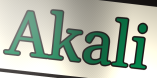
Akali